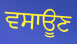
ਵਸਾਊਣ